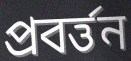
প্রবর্ত্তন